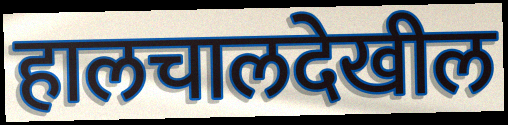
हालचालदेखील